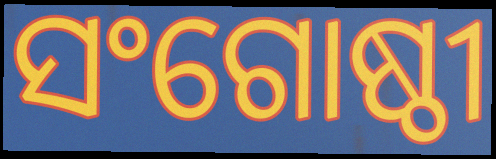
ସଂଗୋଷ୍ଠୀ